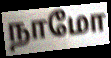
நாமோ